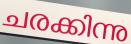
ചരക്കിന്നു